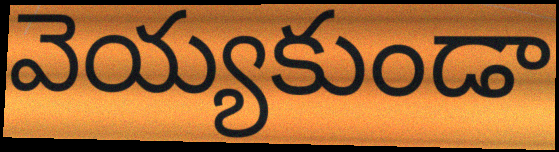
వెయ్యకుండా